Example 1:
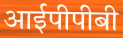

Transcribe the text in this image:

आईपीपीबी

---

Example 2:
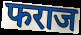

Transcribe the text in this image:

फराज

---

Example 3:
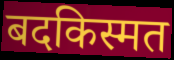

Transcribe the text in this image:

बदकिस्‍मत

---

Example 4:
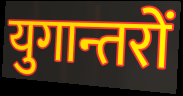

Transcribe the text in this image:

युगान्तरों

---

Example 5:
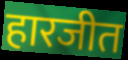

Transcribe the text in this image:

हारजीत